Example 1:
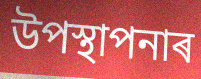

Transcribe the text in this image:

উপস্থাপনাৰ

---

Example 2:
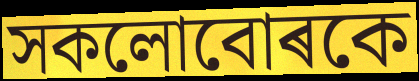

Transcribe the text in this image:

সকলোবোৰকে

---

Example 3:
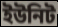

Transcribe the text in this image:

ইউনিট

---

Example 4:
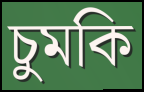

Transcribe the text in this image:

চুমকি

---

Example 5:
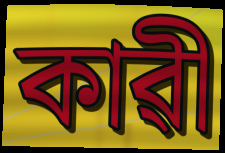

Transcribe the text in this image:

কাৱী